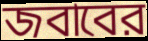
জবাবের